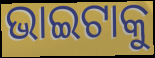
ଭାଇଟାକୁ